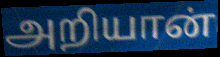
அறியான்